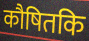
कौषितकि